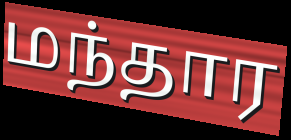
மந்தார